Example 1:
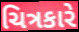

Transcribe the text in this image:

ચિત્રકારે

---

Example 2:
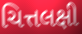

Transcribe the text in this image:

ચિત્તલક્ષી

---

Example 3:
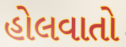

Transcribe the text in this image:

હોલવાતો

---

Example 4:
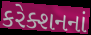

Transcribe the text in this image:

કરેક્શનનાં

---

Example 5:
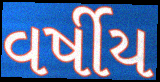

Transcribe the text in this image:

વર્ષીય